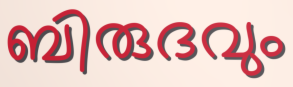
ബിരുദവും